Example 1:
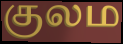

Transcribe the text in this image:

குலம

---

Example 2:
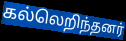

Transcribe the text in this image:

கல்லெறிந்தனர்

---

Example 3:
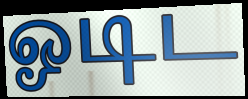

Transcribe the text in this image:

ஓடிட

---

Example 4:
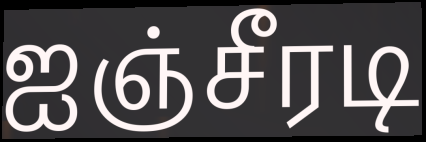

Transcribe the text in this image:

ஐஞ்சீரடி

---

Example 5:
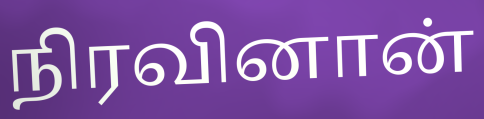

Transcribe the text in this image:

நிரவினான்